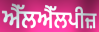
ਐੱਲਐੱਲਪੀਜ਼